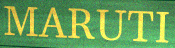
MARUTI